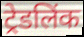
ट्रेडलिंक